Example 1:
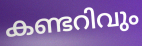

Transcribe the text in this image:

കണ്ടറിവും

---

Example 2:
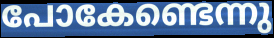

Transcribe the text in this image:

പോകേണ്ടെന്നു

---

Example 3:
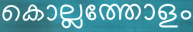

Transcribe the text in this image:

കൊല്ലത്തോളം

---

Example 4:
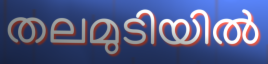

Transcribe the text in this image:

തലമുടിയിൽ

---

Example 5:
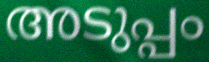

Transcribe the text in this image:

അടുപ്പം